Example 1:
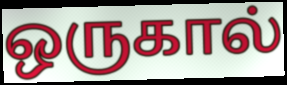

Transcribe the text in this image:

ஒருகால்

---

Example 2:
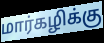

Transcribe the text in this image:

மார்கழிக்கு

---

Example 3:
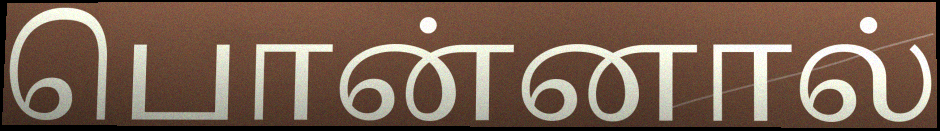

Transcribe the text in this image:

பொன்னால்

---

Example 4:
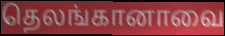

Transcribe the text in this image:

தெலங்கானாவை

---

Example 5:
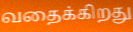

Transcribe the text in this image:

வதைக்கிறது